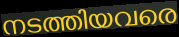
നടത്തിയവരെ